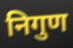
निगुण